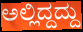
ಅಲ್ಲಿದ್ದದ್ದು